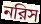
নরিস